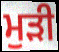
ਮੁੜੀ